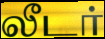
லீடர்